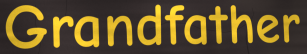
Grandfather